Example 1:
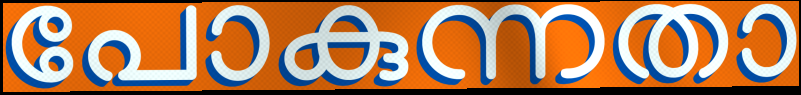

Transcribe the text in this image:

പോകുന്നതാ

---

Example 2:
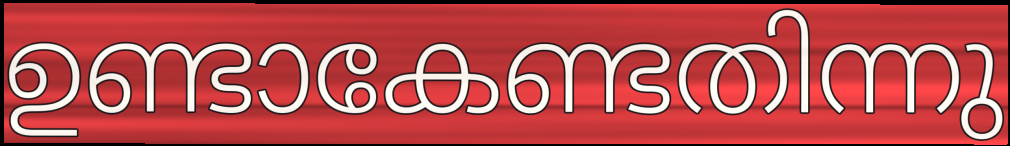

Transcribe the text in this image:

ഉണ്ടാകേണ്ടതിന്നു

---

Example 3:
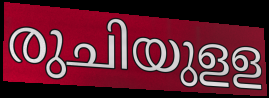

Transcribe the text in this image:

രുചിയുളള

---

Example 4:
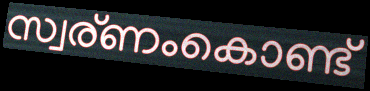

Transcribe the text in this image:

സ്വര്ണംകൊണ്ട്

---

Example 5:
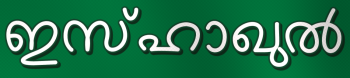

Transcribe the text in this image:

ഇസ്ഹാഖുൽ